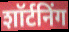
शॉर्टनिंग